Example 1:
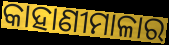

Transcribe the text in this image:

କାହାଣୀମାଳାର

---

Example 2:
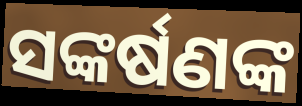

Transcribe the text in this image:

ସଙ୍କର୍ଷଣଙ୍କ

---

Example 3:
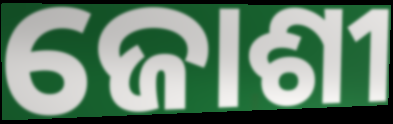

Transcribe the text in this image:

ଜୋଶୀ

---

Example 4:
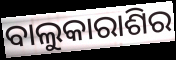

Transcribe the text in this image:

ବାଲୁକାରାଶିର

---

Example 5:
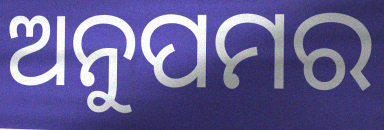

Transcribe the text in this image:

ଅନୁପମର